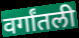
वर्गांतली